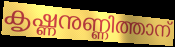
കൃഷ്ണനുണ്ണിത്താന്